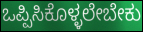
ಒಪ್ಪಿಸಿಕೊಳ್ಳಲೇಬೇಕು